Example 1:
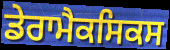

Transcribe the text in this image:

ਡੇਰਾਮੈਕਸਿਕਸ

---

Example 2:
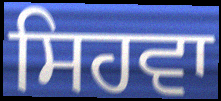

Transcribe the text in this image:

ਸਿਹਵਾ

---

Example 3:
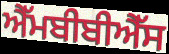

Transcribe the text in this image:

ਐੱਮਬੀਬੀਐੱਸ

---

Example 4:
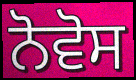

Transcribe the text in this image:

ਨੋਵੋਸ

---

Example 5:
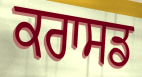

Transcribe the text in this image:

ਕਰਾਸਡ